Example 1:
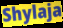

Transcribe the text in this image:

Shylaja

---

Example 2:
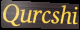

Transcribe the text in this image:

Qurcshi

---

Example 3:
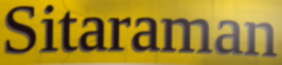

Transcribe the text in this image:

Sitaraman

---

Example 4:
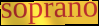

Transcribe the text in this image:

soprano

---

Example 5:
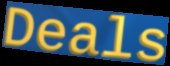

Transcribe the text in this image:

Deals